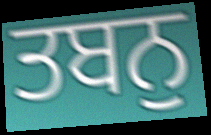
ਤਬਨੁ